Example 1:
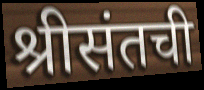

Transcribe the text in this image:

श्रीसंतची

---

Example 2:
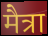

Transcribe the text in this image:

मैत्रा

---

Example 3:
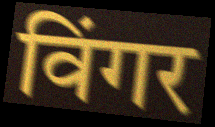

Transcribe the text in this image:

विंगर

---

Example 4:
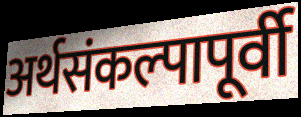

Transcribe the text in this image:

अर्थसंकल्पापूर्वी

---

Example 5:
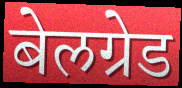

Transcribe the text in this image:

बेलग्रेड